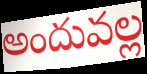
అందువల్ల